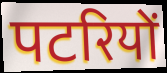
पटरियों